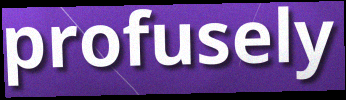
profusely